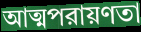
আত্মপরায়ণতা